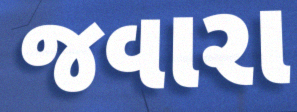
જવારા